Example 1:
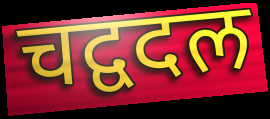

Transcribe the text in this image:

चद्वदल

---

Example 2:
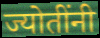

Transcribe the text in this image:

ज्योतींनी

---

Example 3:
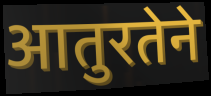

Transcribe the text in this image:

आतुरतेने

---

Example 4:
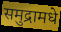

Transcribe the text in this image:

समुद्रामधे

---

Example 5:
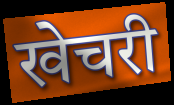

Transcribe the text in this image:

खेचरी